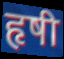
हृषी